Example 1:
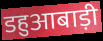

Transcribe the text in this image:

डहुआबाड़ी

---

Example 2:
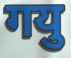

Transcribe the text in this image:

गयु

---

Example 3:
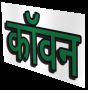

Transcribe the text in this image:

कॉवन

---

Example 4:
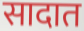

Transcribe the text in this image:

सादात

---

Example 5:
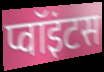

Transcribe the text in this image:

प्वॉइंटस